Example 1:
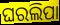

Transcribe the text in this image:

ଘରଲିପା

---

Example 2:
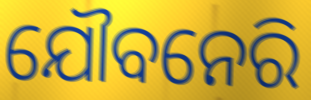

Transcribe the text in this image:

ଯୌବନେରି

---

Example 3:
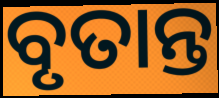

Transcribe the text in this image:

ବୃତାନ୍ତ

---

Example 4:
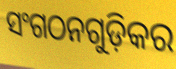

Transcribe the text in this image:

ସଂଗଠନଗୁଡ଼ିକର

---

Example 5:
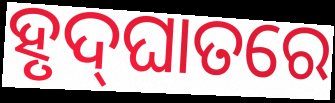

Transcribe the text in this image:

ହୃଦ୍‌ଘାତରେ